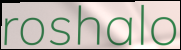
roshalo